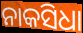
ନାକସିଧା